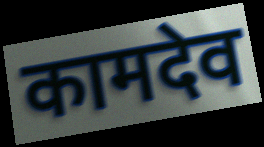
कामदेव